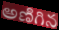
అణిగిన